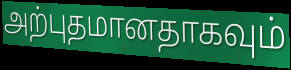
அற்புதமானதாகவும்